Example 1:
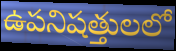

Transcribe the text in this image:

ఉపనిషత్తులలో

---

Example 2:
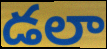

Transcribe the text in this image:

డలా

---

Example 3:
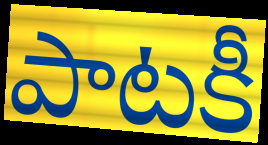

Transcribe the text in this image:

పాటకీ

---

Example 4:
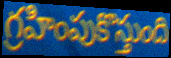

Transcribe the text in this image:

గ్రహింపుకొస్తుంది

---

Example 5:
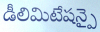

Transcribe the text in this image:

డీలిమిటేషన్పై